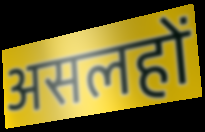
असलहों